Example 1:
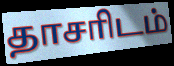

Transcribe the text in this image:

தாசரிடம்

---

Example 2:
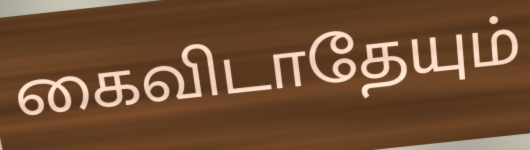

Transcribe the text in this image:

கைவிடாதேயும்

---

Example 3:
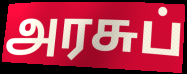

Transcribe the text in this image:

அரசுப்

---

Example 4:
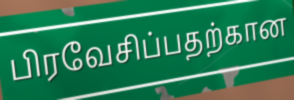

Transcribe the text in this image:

பிரவேசிப்பதற்கான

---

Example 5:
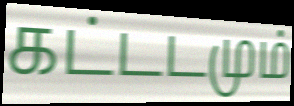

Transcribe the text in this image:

கட்டடமும்